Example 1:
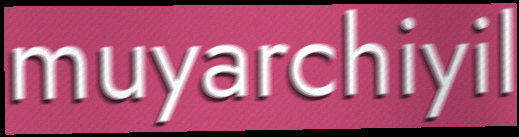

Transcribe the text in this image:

muyarchiyil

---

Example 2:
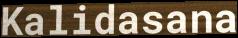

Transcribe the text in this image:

Kalidasana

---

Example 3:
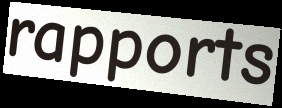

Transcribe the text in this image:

rapports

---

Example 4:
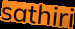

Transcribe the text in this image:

sathiri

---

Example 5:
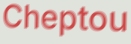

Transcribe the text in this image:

Cheptou